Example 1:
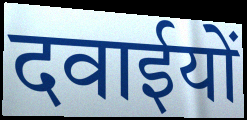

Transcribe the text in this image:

दवाईयों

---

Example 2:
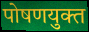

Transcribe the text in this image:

पोषणयुक्त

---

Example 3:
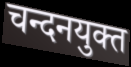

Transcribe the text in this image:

चन्दनयुक्त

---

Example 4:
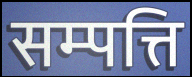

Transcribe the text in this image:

सम्पत्ति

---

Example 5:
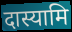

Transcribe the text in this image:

दास्यामि